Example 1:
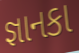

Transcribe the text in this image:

જ્ઞાનકા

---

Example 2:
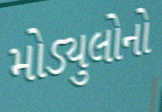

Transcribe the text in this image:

મોડ્યુલોનો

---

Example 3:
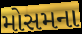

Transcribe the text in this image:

મોસમના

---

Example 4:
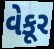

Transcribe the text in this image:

વેકૂર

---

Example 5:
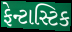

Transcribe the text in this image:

ફેન્ટાસ્ટિક